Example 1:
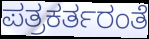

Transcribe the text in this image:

ಪತ್ರಕರ್ತರಂತೆ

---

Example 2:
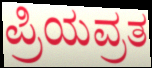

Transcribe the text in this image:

ಪ್ರಿಯವ್ರತ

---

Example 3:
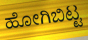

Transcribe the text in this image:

ಹೋಗಿಬಿಟ್ಟ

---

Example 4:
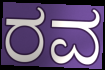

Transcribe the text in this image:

ರವ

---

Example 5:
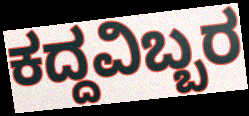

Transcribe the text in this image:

ಕದ್ದವಿಬ್ಬರ